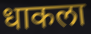
धाकला